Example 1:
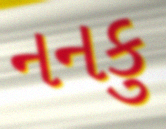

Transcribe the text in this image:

નનકુ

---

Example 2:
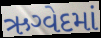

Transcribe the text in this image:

ઋગ્વેદમાં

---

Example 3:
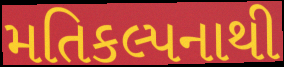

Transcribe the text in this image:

મતિકલ્પનાથી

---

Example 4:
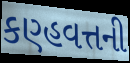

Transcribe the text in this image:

કણ્હવત્તની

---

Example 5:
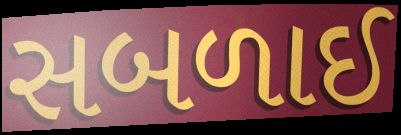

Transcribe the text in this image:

સબળાઈ